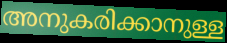
അനുകരിക്കാനുള്ള